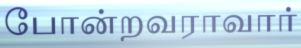
போன்றவராவார்